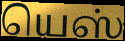
யெஸ்